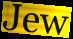
Jew